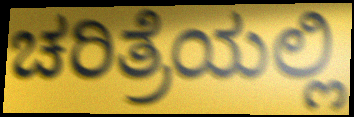
ಚರಿತ್ರೆಯಲ್ಲಿ